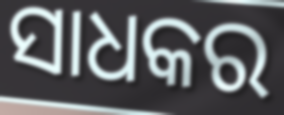
ସାଧକର